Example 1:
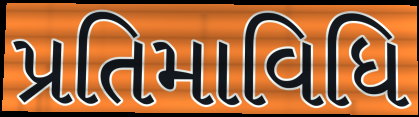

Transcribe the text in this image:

પ્રતિમાવિધિ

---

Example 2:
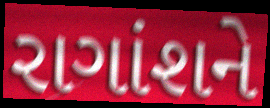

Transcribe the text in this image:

રાગાંશને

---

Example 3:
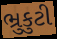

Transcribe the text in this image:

ભ્રુકુટી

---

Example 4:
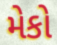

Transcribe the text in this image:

મેકો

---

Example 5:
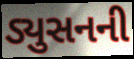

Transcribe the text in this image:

ડ્યુસનની